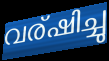
വര്ഷിച്ചു